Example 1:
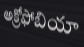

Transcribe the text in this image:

అక్రోఫోబియా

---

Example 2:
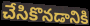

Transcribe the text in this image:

చేసికొనడానికి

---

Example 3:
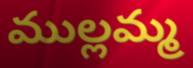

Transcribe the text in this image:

ముల్లమ్మ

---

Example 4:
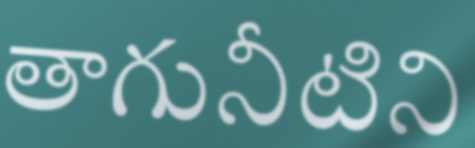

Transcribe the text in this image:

తాగునీటిని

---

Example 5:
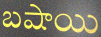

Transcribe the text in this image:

బషాయి